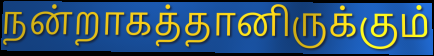
நன்றாகத்தானிருக்கும்